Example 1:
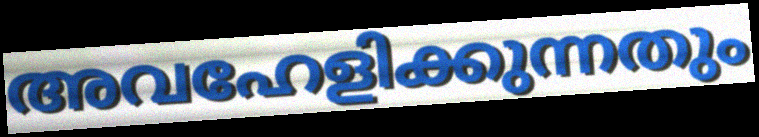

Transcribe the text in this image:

അവഹേളിക്കുന്നതും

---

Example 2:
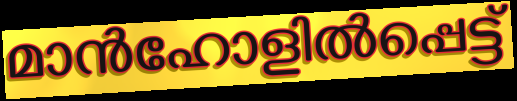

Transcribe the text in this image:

മാൻഹോളിൽപ്പെട്ട്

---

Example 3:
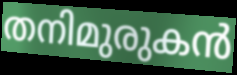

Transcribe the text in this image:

തനിമുരുകൻ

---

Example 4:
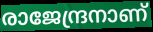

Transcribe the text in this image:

രാജേന്ദ്രനാണ്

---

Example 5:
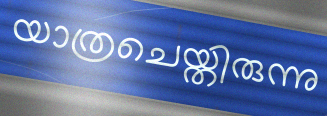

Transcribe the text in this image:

യാത്രചെയ്തിരുന്നു